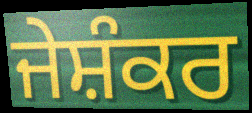
ਜੇਸ਼ੰਕਰ